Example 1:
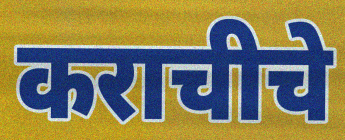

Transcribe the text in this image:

कराचीचे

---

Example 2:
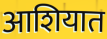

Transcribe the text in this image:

आशियात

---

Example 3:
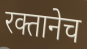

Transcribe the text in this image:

रक्तानेच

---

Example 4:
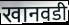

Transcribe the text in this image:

खानवडी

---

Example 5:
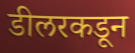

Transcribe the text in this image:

डीलरकडून